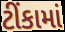
ટીંકામાં